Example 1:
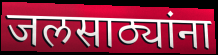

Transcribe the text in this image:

जलसाठ्यांना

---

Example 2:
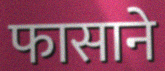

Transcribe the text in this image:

फासाने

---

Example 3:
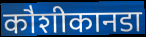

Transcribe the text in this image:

कौशीकानडा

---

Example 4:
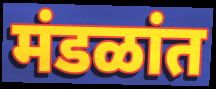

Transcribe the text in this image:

मंडळांत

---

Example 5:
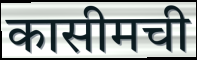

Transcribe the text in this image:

कासीमची